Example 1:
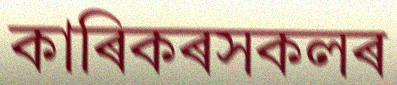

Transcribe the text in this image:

কাৰিকৰসকলৰ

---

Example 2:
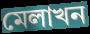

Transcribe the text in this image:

মেলাখন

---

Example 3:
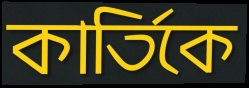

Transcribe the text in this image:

কাৰ্তিকে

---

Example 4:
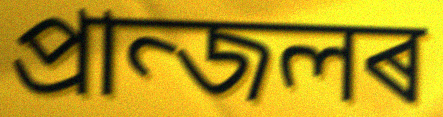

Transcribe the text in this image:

প্ৰান্জলৰ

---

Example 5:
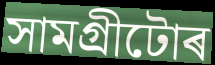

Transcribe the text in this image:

সামগ্ৰীটোৰ